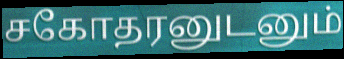
சகோதரனுடனும்